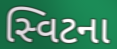
સ્વિટના